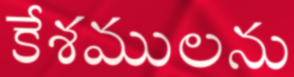
కేశములను